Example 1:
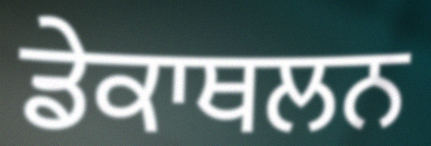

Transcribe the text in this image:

ਡੇਕਾਥਲਨ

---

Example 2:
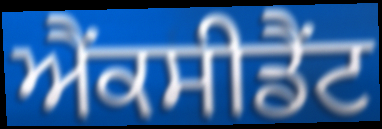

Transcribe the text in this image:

ਐਂਕਸੀਡੈਂਟ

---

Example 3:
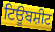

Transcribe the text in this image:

ਟਿਊਬਸ਼ੀਟ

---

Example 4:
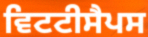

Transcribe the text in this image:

ਵਿਟਟੀਸੈਪਸ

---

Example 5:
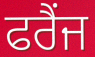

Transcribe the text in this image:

ਫਰੈਂਜ